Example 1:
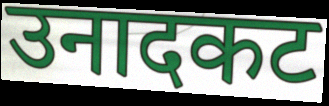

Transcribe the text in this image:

उनादकट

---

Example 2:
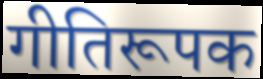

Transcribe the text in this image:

गीतिरूपक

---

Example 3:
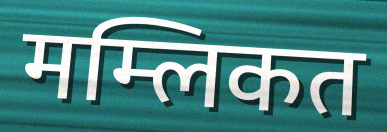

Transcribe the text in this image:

मम्लिकत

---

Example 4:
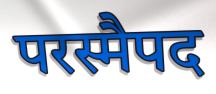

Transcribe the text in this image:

परस्मैपद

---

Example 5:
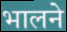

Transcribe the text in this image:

भालने